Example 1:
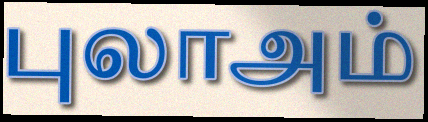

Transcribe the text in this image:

புலாஅம்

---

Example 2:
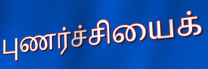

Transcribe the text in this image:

புணர்ச்சியைக்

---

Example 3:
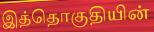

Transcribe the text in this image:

இத்தொகுதியின்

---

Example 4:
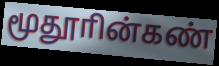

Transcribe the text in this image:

மூதூரின்கண்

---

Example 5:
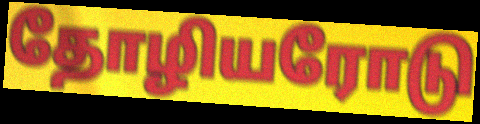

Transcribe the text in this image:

தோழியரோடு